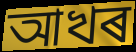
আখৰ